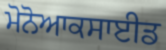
ਮੋਨੋਆਕਸਾਈਡ